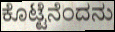
ಕೊಟ್ಟೆನೆಂದನು